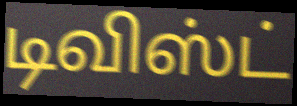
டிவிஸ்ட்